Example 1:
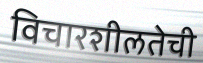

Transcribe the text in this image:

विचारशीलतेची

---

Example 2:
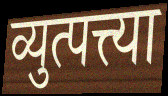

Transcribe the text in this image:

व्युत्पत्त्या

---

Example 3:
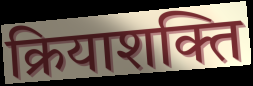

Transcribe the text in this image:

क्रियाशक्ति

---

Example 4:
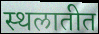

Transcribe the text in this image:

स्थलातीत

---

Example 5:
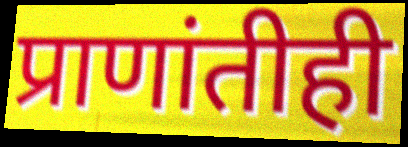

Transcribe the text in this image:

प्राणांतीही